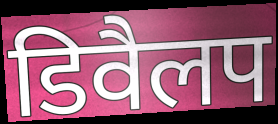
डिवैलप